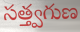
సత్త్వగుణ